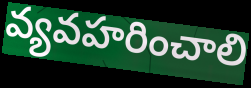
వ్యవహరించాలి